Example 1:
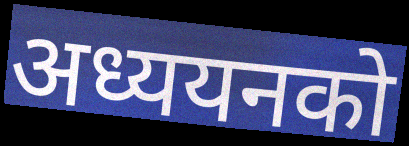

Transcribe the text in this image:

अध्ययनको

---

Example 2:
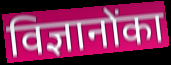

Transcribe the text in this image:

विज्ञानोंका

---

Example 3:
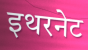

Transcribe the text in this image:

इथरनेट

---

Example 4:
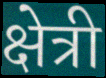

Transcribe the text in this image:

क्षेत्री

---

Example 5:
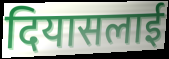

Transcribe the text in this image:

दियासलाई